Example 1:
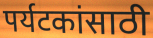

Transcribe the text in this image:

पर्यटकांसाठी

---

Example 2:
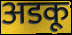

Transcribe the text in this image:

अडकू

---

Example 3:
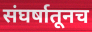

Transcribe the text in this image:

संघर्षातूनच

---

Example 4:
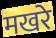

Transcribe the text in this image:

मखरे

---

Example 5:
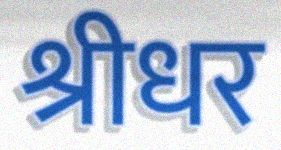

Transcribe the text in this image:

श्रीधर